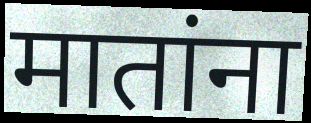
मातांना